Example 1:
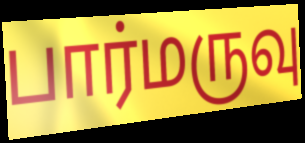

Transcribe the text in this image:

பார்மருவு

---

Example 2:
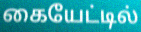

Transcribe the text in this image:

கையேட்டில்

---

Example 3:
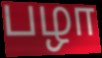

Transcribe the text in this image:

பழா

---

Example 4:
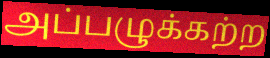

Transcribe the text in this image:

அப்பழுக்கற்ற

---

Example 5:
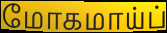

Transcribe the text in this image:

மோகமாய்ப்